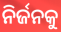
ନିର୍ଜନକୁ